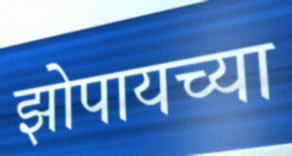
झोपायच्या